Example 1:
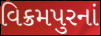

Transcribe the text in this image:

વિક્રમપુરનાં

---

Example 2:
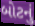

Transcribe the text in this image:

બોટનું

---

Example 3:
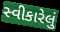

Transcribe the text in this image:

સ્વીકારેલું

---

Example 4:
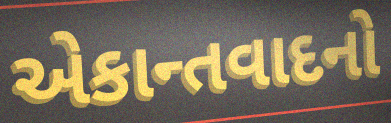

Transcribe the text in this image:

એકાન્તવાદનો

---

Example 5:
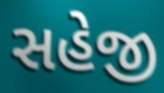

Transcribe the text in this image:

સહેજી